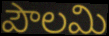
పౌలమి